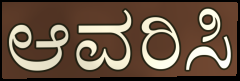
ಆವರಿಸಿ